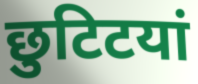
छुटिटयां